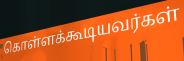
கொள்ளக்கூடியவர்கள்